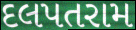
દલપતરામ